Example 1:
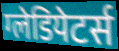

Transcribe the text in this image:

ग्लेडियेटर्स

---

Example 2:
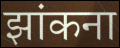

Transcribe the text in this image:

झांकना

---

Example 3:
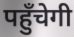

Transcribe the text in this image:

पहुँचेगी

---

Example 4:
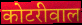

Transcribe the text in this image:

कोटरीवाल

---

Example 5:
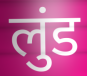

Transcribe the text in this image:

लुंड